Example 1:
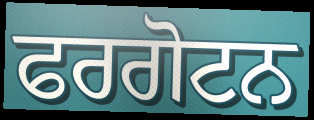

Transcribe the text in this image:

ਫਰਗੋਟਨ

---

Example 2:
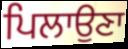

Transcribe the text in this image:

ਪਿਲਾਉਣਾ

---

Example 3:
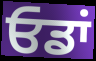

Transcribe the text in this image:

ਓਡਾਂ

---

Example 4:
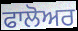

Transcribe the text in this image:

ਫਾਲੋਅਰ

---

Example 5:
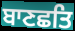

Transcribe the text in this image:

ਬਾਣਛਤਿ